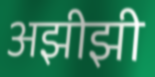
अझीझी